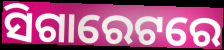
ସିଗାରେଟରେ